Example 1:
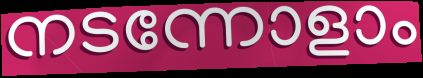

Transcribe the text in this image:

നടന്നോളാം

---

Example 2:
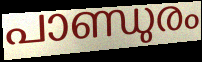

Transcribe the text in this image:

പാണ്ഡുരം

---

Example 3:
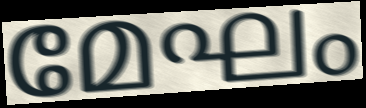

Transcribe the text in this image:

മേഘം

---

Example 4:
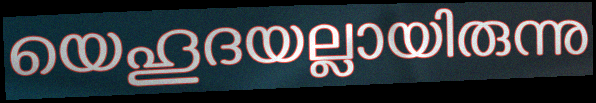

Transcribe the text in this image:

യെഹൂദയല്ലായിരുന്നു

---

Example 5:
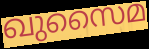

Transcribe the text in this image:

ഖുസൈമ